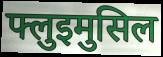
फ्लुइमुसिल